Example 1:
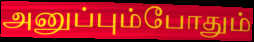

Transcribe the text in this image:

அனுப்பும்போதும்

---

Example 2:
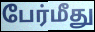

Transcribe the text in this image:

பேர்மீது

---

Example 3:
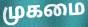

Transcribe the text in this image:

முகமை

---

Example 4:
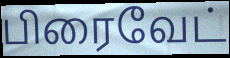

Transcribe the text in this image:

பிரைவேட்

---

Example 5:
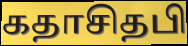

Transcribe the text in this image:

கதாசிதபி